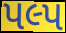
પલ્પ